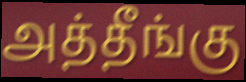
அத்தீங்கு